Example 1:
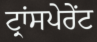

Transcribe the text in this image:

ਟ੍ਰਾਂਸਪੇਰੇਂਟ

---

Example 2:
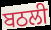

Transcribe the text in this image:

ਬਠਲੀ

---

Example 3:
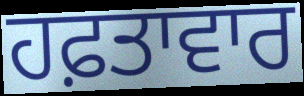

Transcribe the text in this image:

ਹਫ਼ਤਾਵਾਰ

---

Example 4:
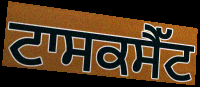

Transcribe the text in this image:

ਟਾਸਕਸੈੱਟ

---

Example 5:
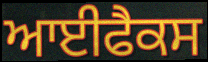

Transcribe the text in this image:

ਆਈਫੈਕਸ